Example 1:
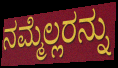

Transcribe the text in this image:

ನಮ್ಮೆಲ್ಲರನ್ನು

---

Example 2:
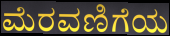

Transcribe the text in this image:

ಮೆರವಣಿಗೆಯ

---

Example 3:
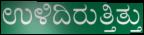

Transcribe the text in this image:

ಉಳಿದಿರುತ್ತಿತ್ತು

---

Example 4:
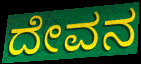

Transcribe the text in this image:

ದೇವನ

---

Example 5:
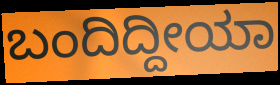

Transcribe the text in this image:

ಬಂದಿದ್ದೀಯಾ